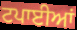
ਟਪਾਈਆਂ